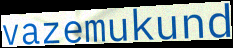
vazemukund